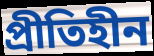
প্রীতিহীন